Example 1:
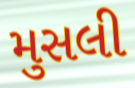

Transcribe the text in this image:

મુસલી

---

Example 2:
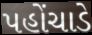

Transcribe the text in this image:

પહોંચાડે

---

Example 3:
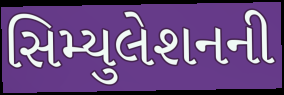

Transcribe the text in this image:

સિમ્યુલેશનની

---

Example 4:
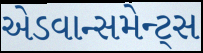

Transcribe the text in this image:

એડવાન્સમેન્ટ્સ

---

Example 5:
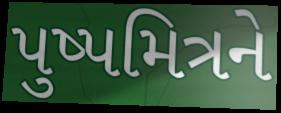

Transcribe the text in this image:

પુષ્પમિત્રને